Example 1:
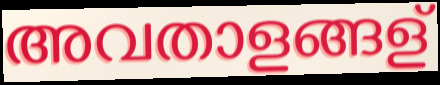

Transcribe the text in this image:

അവതാളങ്ങള്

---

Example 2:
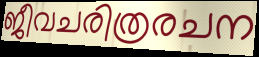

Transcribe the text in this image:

ജീവചരിത്രരചന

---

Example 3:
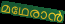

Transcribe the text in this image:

മഥേരാൻ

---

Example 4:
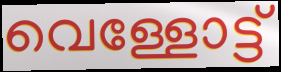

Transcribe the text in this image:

വെള്ളോട്ട്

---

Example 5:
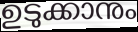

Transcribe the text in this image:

ഉടുക്കാനും